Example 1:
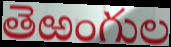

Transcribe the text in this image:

తెఱంగుల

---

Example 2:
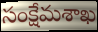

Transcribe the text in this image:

సంక్షేమశాఖ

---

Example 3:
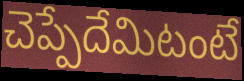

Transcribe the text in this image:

చెప్పేదేమిటంటే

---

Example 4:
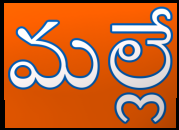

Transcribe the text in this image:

మల్లే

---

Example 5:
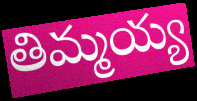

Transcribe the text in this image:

తిమ్మయ్య